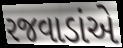
રજવાડાંએ